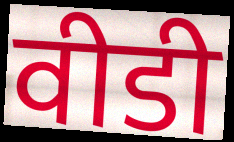
वीडी